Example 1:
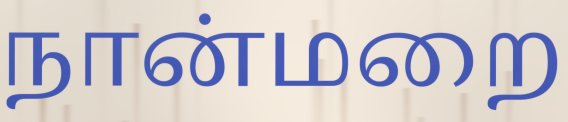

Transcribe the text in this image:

நான்மறை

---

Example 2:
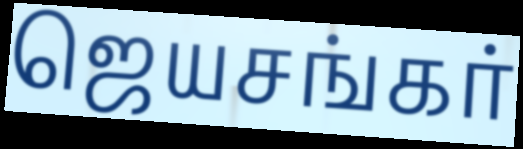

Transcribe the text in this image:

ஜெயசங்கர்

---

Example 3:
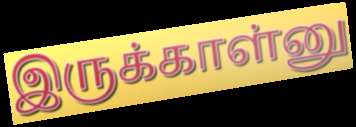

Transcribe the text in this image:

இருக்காள்னு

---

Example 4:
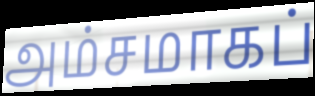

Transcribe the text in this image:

அம்சமாகப்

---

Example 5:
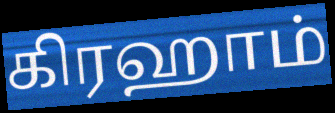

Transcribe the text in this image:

கிரஹாம்